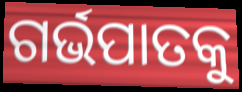
ଗର୍ଭପାତକୁ